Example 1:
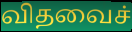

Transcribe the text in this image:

விதவைச்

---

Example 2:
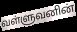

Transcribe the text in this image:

வள்ளுவனின்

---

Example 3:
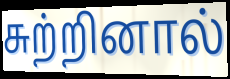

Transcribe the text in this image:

சுற்றினால்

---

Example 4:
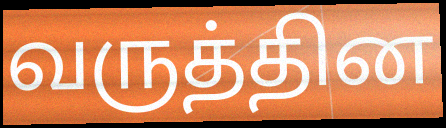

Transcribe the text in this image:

வருத்தின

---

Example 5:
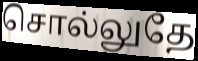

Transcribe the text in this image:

சொல்லுதே